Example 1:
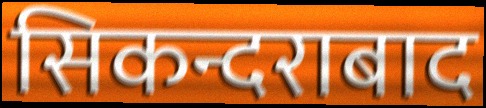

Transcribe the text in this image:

सिकन्दराबाद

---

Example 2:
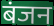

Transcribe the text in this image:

बंजन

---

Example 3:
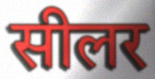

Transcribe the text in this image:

सीलर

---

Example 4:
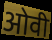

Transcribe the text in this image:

ओवी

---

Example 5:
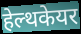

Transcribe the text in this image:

हेल्थकेयर